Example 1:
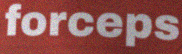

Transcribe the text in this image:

forceps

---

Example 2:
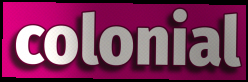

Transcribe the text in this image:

colonial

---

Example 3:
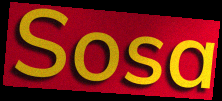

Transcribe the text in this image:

Sosa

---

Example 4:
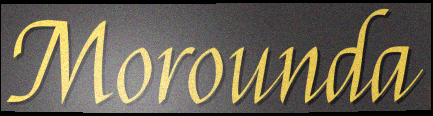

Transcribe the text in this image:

Morounda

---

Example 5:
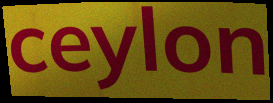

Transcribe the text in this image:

ceylon